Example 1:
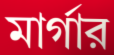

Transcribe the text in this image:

মার্গার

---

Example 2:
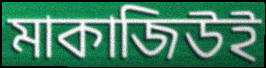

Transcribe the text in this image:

মাকাজিউই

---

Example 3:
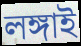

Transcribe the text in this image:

লঙ্গাই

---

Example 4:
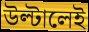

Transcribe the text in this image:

উল্টালেই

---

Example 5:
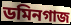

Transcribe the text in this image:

ডমিনগাজ